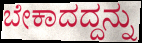
ಬೇಕಾದದ್ದನ್ನು